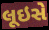
લૂઇસે